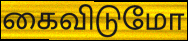
கைவிடுமோ